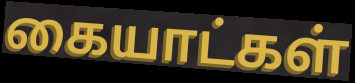
கையாட்கள்